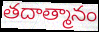
తదాత్మానం